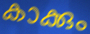
കാക്കും